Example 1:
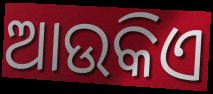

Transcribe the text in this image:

ଆଉକିଏ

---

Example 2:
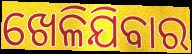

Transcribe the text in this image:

ଖେଳିଯିବାର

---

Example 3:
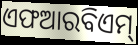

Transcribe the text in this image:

ଏଫଆରବିଏମ୍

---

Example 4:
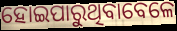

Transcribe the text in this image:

ହୋଇପାରୁଥିବାବେଳେ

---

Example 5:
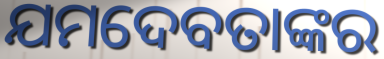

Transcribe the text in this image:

ଯମଦେବତାଙ୍କର